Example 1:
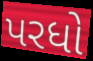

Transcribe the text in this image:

પરધો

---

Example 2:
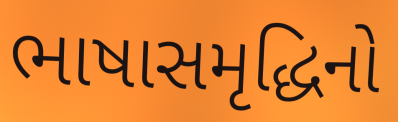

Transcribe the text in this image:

ભાષાસમૃદ્ધિનો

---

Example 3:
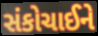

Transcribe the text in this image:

સંકોચાઈને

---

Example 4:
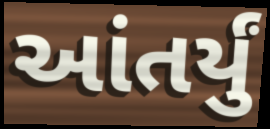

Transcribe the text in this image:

આંતર્યું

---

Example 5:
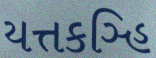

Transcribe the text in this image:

યત્તકઞ્હિ